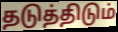
தடுத்திடும்